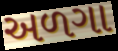
અળગા